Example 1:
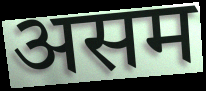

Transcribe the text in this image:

असम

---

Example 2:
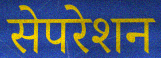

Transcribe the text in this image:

सेपरेशन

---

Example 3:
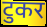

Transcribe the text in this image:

टुकर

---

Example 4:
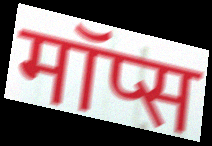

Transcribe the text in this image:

मॉप्स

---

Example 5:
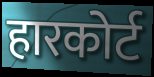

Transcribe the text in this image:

हारकोर्ट